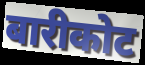
बारीकोट